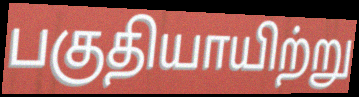
பகுதியாயிற்று